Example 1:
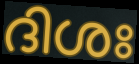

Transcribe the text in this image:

ദിശഃ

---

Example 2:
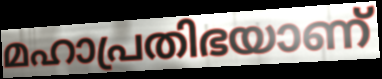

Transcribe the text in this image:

മഹാപ്രതിഭയാണ്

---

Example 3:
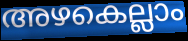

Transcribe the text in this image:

അഴകെല്ലാം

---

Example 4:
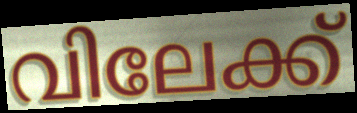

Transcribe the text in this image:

വിലേക്ക്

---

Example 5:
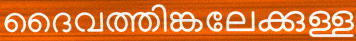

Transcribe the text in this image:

ദൈവത്തിങ്കലേക്കുള്ള